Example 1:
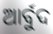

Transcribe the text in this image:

ଆର୍ବୁଦ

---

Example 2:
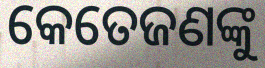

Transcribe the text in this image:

କେତେଜଣଙ୍କୁ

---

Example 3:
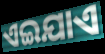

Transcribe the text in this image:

ଏଇଯାଏ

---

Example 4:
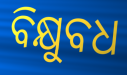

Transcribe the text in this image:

ବିକ୍ଷୁବଧ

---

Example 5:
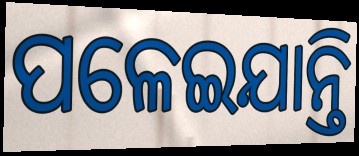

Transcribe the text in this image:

ପଳେଇଯାନ୍ତି